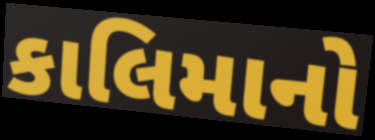
કાલિમાનો